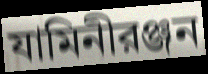
যামিনীরঞ্জন